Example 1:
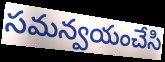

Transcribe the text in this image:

సమన్వయంచేసి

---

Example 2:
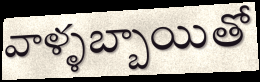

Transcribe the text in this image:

వాళ్ళబ్బాయితో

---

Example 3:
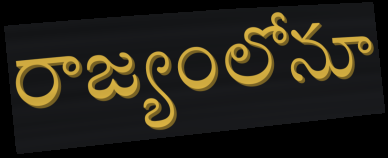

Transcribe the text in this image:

రాజ్యంలోనూ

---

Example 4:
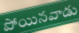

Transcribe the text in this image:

పోయినవాడు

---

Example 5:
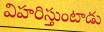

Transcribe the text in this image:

విహరిస్తుంటాడు